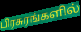
பிரசுரங்களில்